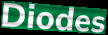
Diodes